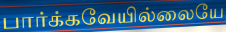
பார்க்கவேயில்லையே